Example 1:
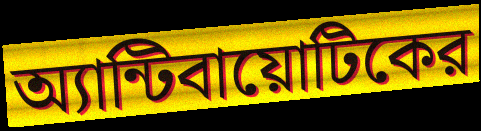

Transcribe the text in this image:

অ্যান্টিবায়োটিকের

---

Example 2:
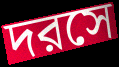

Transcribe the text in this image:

দরসে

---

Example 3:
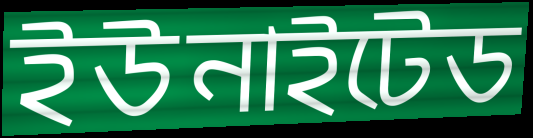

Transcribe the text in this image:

ইউনাইটেড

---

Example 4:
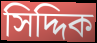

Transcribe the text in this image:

সিদ্দিক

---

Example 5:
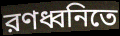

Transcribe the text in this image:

রণধ্বনিতে